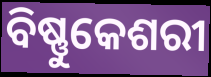
ବିଷ୍ଣୁକେଶରୀ